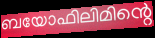
ബയോഫിലിമിന്റെ